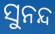
ସୁନନ୍ଦ